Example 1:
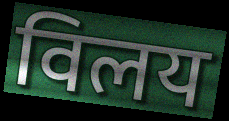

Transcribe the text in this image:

विलय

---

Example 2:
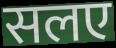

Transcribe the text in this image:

सलए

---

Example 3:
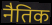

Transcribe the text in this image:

नैतिक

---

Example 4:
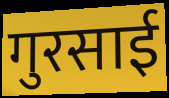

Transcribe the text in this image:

गुरसाई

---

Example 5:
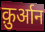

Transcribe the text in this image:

क़ुर्आन